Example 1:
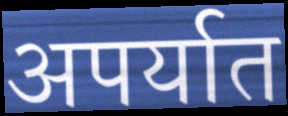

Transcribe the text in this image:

अपर्यात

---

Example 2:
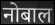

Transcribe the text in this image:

नोबाल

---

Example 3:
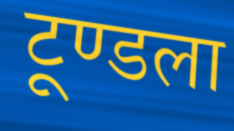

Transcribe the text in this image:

टूण्डला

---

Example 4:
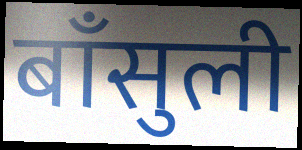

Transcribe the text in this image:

बाँसुली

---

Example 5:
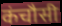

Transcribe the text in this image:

कंचौसी